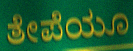
ತೇಪೆಯೂ